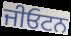
ਜੀਓਟਨ